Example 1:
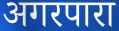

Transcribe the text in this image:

अगरपारा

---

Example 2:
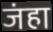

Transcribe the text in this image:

जंहा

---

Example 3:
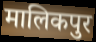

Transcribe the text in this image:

मालिकपुर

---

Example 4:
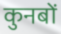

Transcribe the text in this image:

कुनबों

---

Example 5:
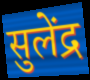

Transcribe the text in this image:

सुलेंद्र